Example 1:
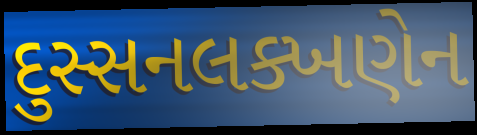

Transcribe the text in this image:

દુસ્સનલક્ખણેન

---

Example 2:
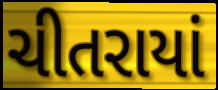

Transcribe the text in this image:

ચીતરાયાં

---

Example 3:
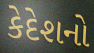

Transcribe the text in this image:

કેદેશનો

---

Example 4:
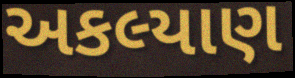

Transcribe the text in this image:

અકલ્યાણ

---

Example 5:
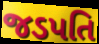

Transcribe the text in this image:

જડપતિ